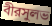
বীরসুলভ